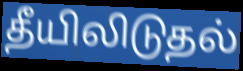
தீயிலிடுதல்